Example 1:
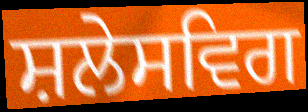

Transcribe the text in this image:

ਸ਼ਲੇਸਵਿਗ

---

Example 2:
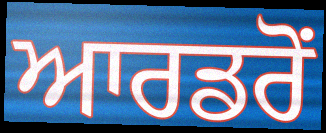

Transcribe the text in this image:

ਆਰਡਰੋਂ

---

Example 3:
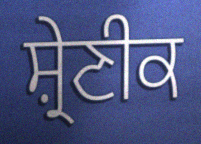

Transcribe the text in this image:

ਸ਼੍ਰੇਣੀਕ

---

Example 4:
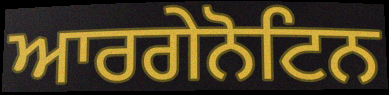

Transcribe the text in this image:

ਆਰਗੇਨੋਟਿਨ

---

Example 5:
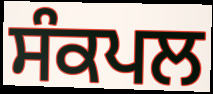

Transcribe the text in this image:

ਸੰਕਪਲ